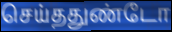
செய்ததுண்டோ